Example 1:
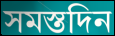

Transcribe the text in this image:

সমস্তদিন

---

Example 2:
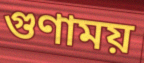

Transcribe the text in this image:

গুণাময়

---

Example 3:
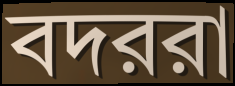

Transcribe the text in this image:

বদররা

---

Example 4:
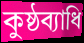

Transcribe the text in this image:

কুষ্ঠব্যাধি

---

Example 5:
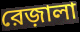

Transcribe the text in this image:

রেজ়ালা